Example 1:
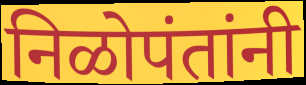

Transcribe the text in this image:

निळोपंतांनी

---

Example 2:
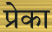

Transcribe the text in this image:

प्रेका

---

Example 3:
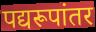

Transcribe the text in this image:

पद्यरूपांतर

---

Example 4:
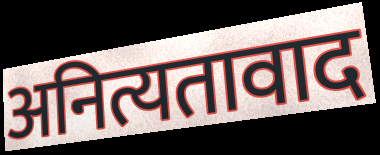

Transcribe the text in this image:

अनित्यतावाद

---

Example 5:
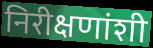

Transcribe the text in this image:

निरीक्षणांशी